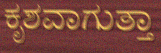
ಕೃಶವಾಗುತ್ತಾ